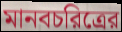
মানবচরিত্রের